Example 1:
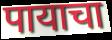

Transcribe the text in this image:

पायाचा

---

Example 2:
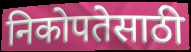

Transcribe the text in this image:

निकोपतेसाठी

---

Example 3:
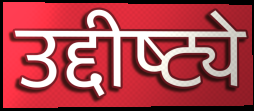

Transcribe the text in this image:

उद्दीष्ट्ये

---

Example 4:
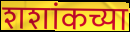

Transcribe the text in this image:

शशांकच्या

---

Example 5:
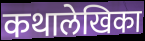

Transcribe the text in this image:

कथालेखिका